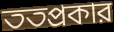
ততপ্রকার